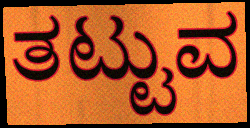
ತಟ್ಟುವ